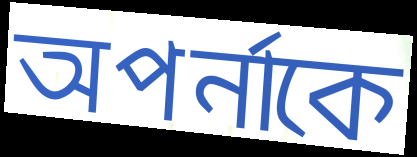
অপর্নাকে